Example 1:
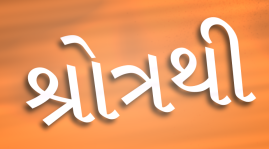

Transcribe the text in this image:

શ્રોત્રથી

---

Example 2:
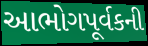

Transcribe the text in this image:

આભોગપૂર્વકની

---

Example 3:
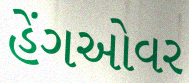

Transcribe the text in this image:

હેંગઓવર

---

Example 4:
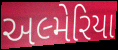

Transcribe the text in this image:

અલ્મેરિયા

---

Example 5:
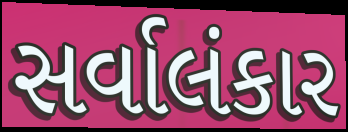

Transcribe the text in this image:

સર્વાલંકાર